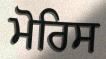
ਮੋਰਿਸ